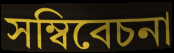
সম্বিবেচনা